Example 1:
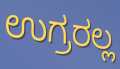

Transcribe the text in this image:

ಉಗ್ರರಲ್ಲ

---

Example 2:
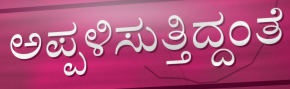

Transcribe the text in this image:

ಅಪ್ಪಳಿಸುತ್ತಿದ್ದಂತೆ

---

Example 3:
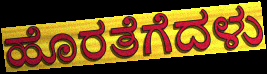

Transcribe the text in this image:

ಹೊರತೆಗೆದಳು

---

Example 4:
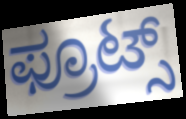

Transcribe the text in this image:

ಫ್ರೂಟ್ಸ್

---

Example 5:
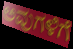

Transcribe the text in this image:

ಅವುಗಳಿಗೆ